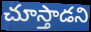
చూస్తాడని